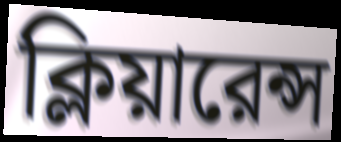
ক্লিয়ারেন্স